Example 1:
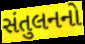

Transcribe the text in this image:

સંતુલનનો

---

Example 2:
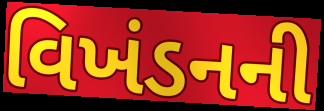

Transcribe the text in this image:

વિખંડનની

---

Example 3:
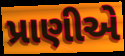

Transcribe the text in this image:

પ્રાણીએ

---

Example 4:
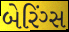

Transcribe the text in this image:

બેરિંગ્સ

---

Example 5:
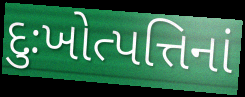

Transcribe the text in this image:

દુઃખોત્પત્તિનાં